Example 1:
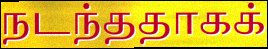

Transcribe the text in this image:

நடந்ததாகக்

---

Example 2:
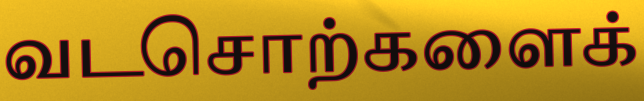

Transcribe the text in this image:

வடசொற்களைக்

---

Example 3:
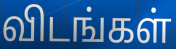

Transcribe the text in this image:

விடங்கள்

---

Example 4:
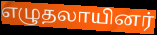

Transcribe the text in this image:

எழுதலாயினர்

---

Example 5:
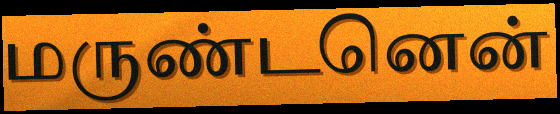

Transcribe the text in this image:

மருண்டனென்